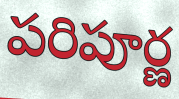
పరిపూర్ణ